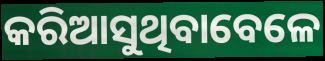
କରିଆସୁଥିବାବେଳେ